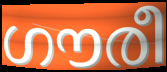
ഗൗരീ